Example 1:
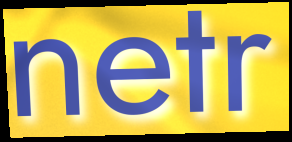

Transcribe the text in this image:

netr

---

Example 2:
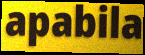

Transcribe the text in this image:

apabila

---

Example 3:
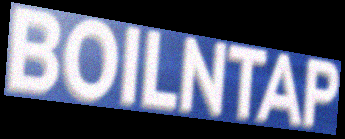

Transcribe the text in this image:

BOILNTAP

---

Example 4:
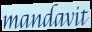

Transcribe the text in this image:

mandavit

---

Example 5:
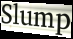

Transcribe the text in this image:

Slump